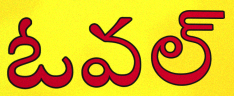
ఓవల్